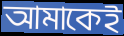
আমাকেই